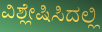
ವಿಶ್ಲೇಷಿಸಿದಲ್ಲಿ